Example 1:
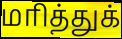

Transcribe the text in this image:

மரித்துக்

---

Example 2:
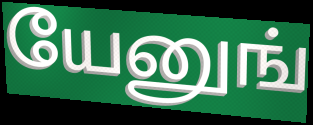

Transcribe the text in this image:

யேனுங்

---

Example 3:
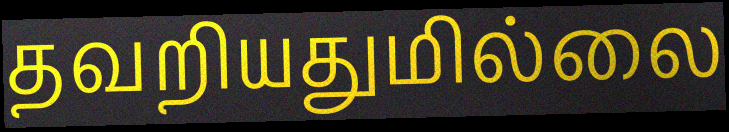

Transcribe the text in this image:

தவறியதுமில்லை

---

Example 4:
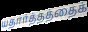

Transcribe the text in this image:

யதார்த்தத்தைக்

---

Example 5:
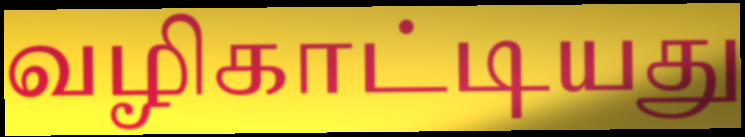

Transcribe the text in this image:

வழிகாட்டியது